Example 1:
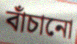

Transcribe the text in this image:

বাঁচানো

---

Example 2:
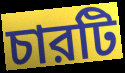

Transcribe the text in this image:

চারটি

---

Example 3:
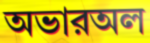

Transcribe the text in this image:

অভারঅল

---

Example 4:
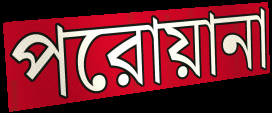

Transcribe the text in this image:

পরোয়ানা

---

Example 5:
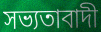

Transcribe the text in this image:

সভ্যতাবাদী